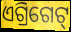
ଏଗ୍ରିଗେଟ୍